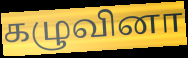
கழுவினா